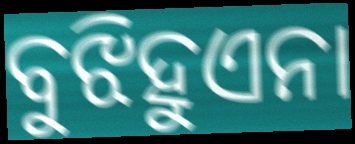
ବୁଝିହୁଏନା